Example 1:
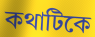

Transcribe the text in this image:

কথাটিকে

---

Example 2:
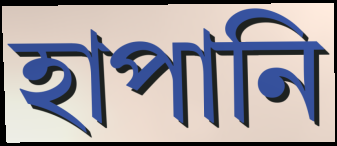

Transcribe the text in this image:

হাপানি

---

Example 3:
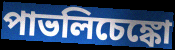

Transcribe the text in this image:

পাভলিচেঙ্কো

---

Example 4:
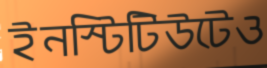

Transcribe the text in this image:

ইনস্টিটিউটেও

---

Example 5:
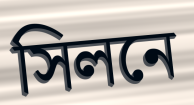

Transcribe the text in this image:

সিলনে